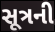
સૂત્રની